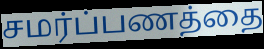
சமர்ப்பணத்தை